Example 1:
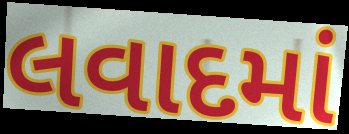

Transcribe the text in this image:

લવાદમાં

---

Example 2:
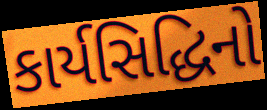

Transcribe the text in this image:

કાર્યસિદ્ધિનો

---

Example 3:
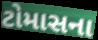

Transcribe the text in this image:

ટોમાસના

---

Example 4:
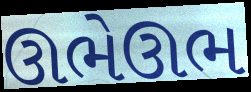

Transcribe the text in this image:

ઊભેઊભ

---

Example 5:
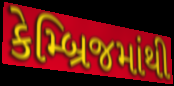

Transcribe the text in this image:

કેમ્બ્રિજમાંથી